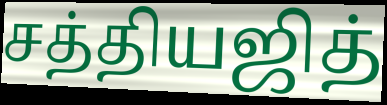
சத்தியஜித்